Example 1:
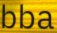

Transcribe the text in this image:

bba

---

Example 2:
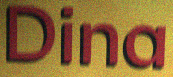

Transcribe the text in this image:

Dina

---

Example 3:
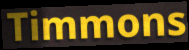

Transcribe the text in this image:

Timmons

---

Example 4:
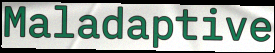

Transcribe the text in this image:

Maladaptive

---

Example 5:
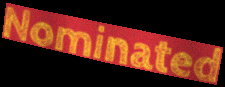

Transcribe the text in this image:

Nominated